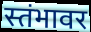
स्तंभावर